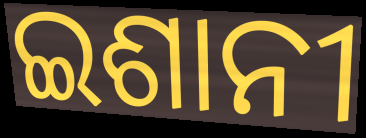
ଇଶାନୀ